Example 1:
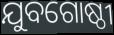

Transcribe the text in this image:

ଯୁବଗୋଷ୍ଠୀ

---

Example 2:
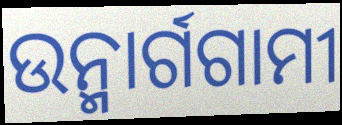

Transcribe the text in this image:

ଉନ୍ମାର୍ଗଗାମୀ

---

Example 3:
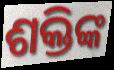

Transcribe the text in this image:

ଶକ୍ତିଙ୍କ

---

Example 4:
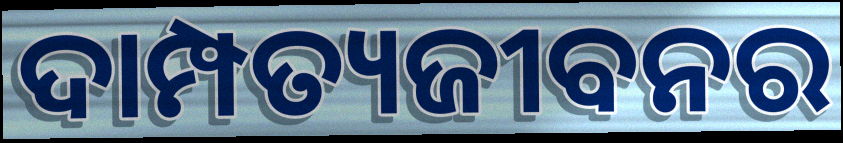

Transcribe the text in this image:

ଦାମ୍ପତ୍ୟଜୀବନର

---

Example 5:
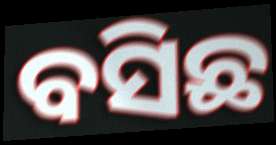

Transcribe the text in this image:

ବସିଛ